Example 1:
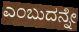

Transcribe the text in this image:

ಎಂಬುದನ್ನೇ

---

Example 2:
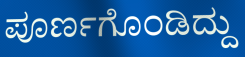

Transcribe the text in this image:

ಪೂರ್ಣಗೊಂಡಿದ್ದು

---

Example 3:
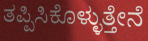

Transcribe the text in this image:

ತಪ್ಪಿಸಿಕೊಳ್ಳುತ್ತೇನೆ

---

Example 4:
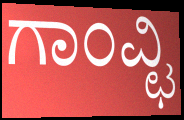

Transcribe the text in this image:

ಗಾಂವ್ಟಿ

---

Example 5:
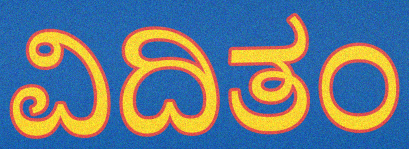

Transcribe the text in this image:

ವಿದಿತಂ